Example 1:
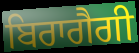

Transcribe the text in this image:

ਬਿਰਾਗੈਗੀ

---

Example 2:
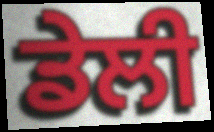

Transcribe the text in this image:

ਡੇਲੀ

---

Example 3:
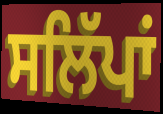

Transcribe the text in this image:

ਸਲਿੱਪਾਂ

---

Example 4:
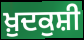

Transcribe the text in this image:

ਖ਼ੁਦਕੁਸ਼ੀ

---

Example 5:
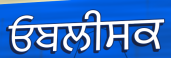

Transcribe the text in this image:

ਓਬਲੀਸਕ